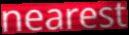
nearest